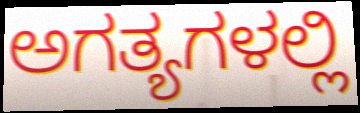
ಅಗತ್ಯಗಳಲ್ಲಿ